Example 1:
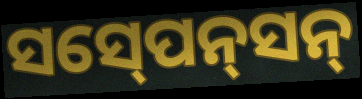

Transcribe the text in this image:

ସସ୍‍ପେନ୍‍ସନ୍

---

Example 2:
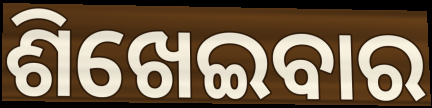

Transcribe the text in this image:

ଶିଖେଇବାର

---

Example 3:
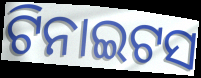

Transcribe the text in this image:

ଟିନାଇଟସ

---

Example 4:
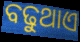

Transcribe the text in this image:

ବଢୁଥାଏ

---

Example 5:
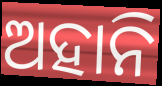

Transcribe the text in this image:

ଅହାନି